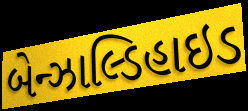
બેન્ઝાલ્ડિહાઇડ